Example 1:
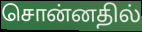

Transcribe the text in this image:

சொன்னதில்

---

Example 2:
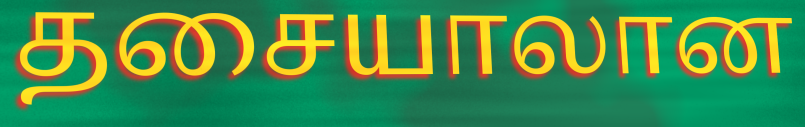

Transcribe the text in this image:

தசையாலான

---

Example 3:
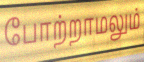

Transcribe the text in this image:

போற்றாமலும்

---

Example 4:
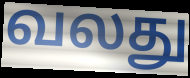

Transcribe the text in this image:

வலது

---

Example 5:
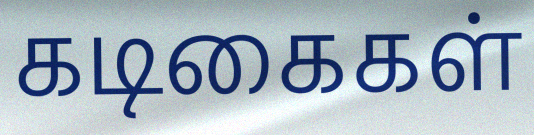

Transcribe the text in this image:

கடிகைகள்